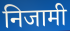
निजामी